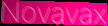
Novavax